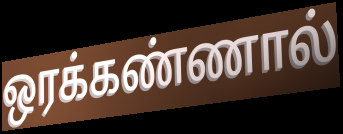
ஒரக்கண்ணால்